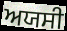
ਅਯਸੀ